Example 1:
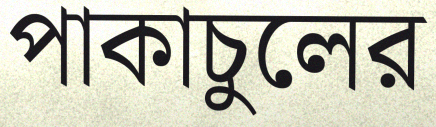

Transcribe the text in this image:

পাকাচুলের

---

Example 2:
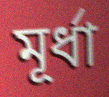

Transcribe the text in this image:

মূর্ধা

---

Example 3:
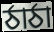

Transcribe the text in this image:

ঠাঠা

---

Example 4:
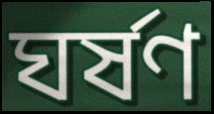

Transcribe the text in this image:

ঘর্ষণ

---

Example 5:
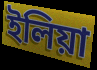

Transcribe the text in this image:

ইলিয়া